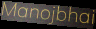
Manojbhai